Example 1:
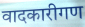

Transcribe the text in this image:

वादकारीगण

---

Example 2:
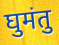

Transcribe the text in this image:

घुमंतु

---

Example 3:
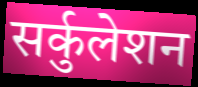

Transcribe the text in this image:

सर्कुलेशन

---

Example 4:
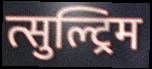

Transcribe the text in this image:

त्सुल्ट्रिम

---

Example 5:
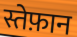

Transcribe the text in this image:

स्तेफ़ान